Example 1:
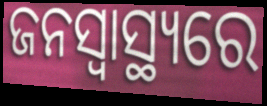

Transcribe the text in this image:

ଜନସ୍ବାସ୍ଥ୍ୟରେ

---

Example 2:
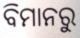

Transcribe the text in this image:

ବିମାନରୁ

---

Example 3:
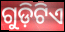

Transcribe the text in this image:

ଗୁଡ଼ିଟିଏ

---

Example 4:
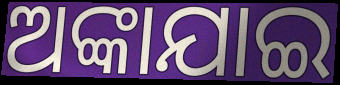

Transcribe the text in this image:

ଅଙ୍କାଯାଇ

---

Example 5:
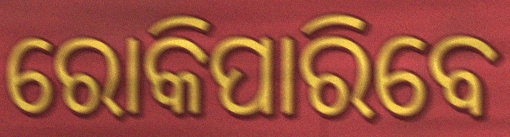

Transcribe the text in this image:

ରୋକିପାରିବେ